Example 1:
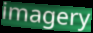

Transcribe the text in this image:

imagery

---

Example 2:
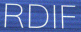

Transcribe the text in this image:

RDIF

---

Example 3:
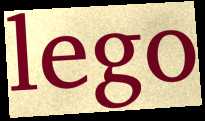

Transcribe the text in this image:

lego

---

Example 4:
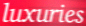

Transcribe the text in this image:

luxuries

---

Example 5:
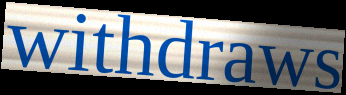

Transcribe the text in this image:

withdraws